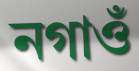
নগাওঁ